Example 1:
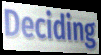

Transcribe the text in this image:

Deciding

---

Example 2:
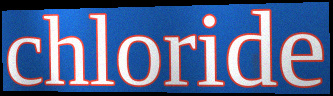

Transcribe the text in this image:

chloride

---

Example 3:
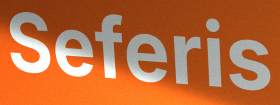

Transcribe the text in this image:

Seferis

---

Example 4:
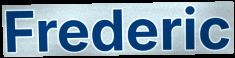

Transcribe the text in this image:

Frederic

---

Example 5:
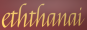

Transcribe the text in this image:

eththanai